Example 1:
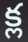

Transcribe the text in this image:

క్ల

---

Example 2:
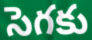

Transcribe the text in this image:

సెగకు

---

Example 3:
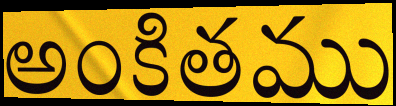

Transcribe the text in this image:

అంకితము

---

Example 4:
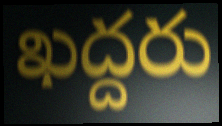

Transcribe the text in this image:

ఖద్దరు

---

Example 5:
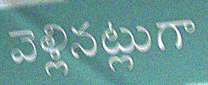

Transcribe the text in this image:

వెళ్లినట్లుగా